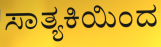
ಸಾತ್ಯಕಿಯಿಂದ